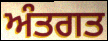
ਅੰਤਗਤ